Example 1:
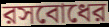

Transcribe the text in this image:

রসবোধের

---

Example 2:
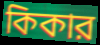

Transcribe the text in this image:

কিকার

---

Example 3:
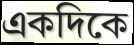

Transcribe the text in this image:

একদিকে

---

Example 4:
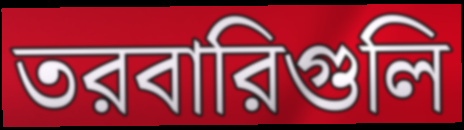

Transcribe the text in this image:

তরবারিগুলি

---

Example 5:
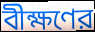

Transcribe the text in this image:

বীক্ষণের